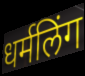
धर्मलिंग